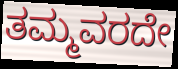
ತಮ್ಮವರದೇ